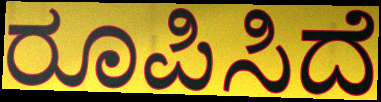
ರೂಪಿಸಿದೆ